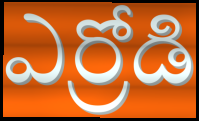
ఎర్రోడి